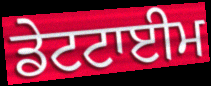
ਡੇਟਟਾਈਮ